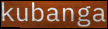
kubanga